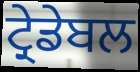
ਟ੍ਰੇਡੇਬਲ